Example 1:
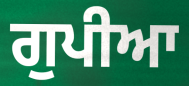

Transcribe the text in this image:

ਗੁਪੀਆ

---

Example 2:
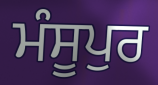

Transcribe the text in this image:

ਮੰਸੂਪੁਰ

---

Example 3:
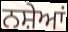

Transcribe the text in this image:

ਨਸ਼ੇਆਂ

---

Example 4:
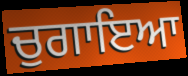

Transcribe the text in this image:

ਚੁਗਾਇਆ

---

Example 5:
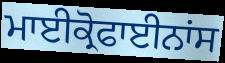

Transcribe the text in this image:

ਮਾਈਕ੍ਰੋਫਾਈਨਾਂਸ